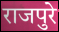
राजपुरे